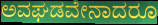
ಅವಘಡವೇನಾದರೂ